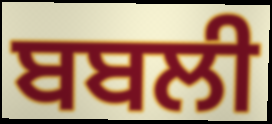
ਬਬਲੀ